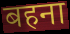
बहना